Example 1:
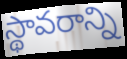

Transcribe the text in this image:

స్థావరాన్ని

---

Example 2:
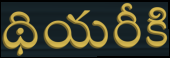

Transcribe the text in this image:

థియరీకి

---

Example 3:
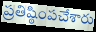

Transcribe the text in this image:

ప్రతిష్ఠింపచేశారు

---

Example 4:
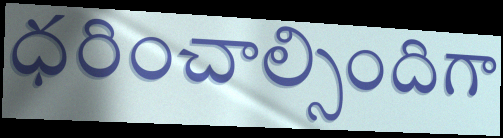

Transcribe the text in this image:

ధరించాల్సిందిగా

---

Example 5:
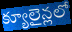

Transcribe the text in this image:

క్యూలైన్లలో